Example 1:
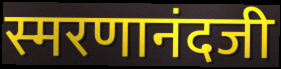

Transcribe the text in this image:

स्मरणानंदजी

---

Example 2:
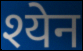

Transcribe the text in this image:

श्येन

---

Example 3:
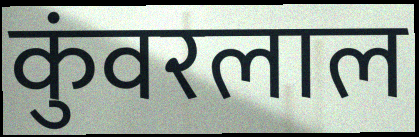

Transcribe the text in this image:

कुंवरलाल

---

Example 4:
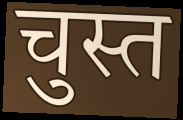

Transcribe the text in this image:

चुस्त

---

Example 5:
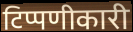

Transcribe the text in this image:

टिप्पणीकारी